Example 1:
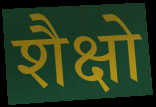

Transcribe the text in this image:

शैक्षो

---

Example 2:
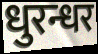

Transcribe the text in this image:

धुरन्धर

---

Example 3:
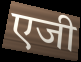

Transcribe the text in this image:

एजी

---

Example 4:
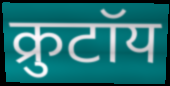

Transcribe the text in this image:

क्रुटॉय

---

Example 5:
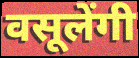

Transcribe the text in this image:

वसूलेंगी